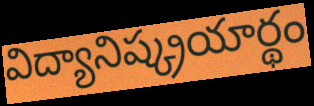
విద్యానిష్క్రయార్థం